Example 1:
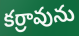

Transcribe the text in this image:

కర్రావును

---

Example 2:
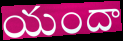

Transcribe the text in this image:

యందా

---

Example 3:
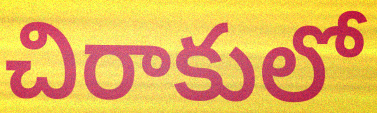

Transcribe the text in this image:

చిరాకులో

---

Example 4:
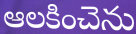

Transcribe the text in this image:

ఆలకించెను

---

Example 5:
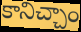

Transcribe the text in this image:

కానిచ్చాం